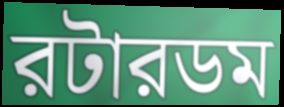
রটারডম